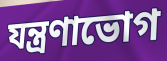
যন্ত্রণাভোগ